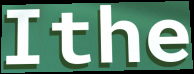
Ithe